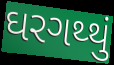
ઘરગથ્થું